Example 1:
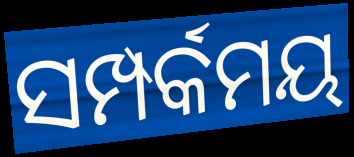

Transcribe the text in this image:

ସମ୍ପର୍କମୟ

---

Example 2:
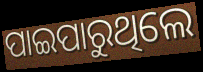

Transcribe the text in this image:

ପାଇପାରୁଥିଲେ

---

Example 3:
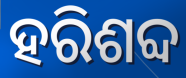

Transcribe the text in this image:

ହରିଶବ୍ଦ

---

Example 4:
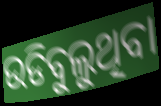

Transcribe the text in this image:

ଉଡିବୁଲୁଥିବା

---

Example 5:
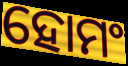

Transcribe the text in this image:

ହୋମଂ